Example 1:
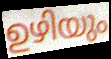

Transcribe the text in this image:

ഉഴിയും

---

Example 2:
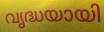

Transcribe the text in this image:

വൃദ്ധയായി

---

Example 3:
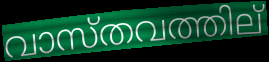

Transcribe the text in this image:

വാസ്തവത്തില്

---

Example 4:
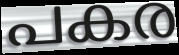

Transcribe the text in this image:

പകര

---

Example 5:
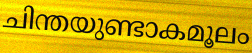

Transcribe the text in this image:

ചിന്തയുണ്ടാകമൂലം